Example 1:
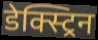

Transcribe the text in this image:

डेक्स्ट्रिन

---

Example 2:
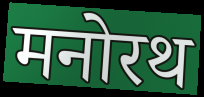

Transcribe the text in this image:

मनोरथ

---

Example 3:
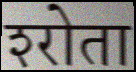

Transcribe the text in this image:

श्रोता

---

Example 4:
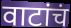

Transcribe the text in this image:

वाटांचं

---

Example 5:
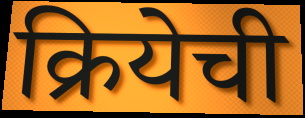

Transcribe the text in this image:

क्रियेची